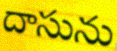
దాసును